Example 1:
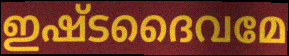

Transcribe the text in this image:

ഇഷ്ടദൈവമേ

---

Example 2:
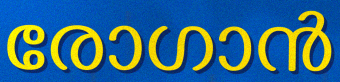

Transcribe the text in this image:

രോഗാൻ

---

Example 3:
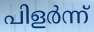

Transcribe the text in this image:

പിളർന്ന്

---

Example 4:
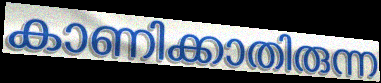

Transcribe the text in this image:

കാണിക്കാതിരുന്ന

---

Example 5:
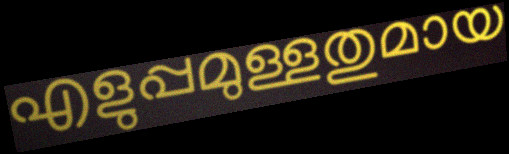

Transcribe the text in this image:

എളുപ്പമുള്ളതുമായ